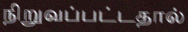
நிறுவப்பட்டதால்